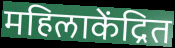
महिलाकेंद्रित